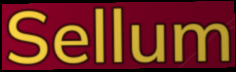
Sellum